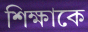
শিক্ষাকে